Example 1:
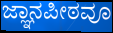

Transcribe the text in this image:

ಜ್ಞಾನಪೀಠವೂ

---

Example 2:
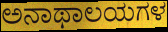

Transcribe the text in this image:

ಅನಾಥಾಲಯಗಳ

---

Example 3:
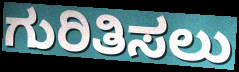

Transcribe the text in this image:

ಗುರಿತಿಸಲು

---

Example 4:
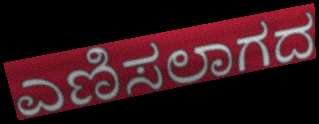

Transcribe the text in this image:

ಎಣಿಸಲಾಗದ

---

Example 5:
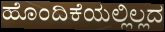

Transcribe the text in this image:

ಹೊಂದಿಕೆಯಲ್ಲಿಲ್ಲದ